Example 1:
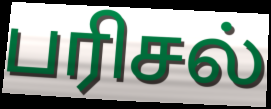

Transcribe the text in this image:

பரிசல்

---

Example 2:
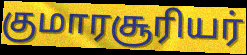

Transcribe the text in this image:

குமாரசூரியர்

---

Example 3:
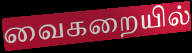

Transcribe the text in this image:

வைகறையில்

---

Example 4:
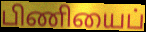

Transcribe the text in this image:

பிணியைப்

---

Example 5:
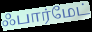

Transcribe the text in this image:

ஃபார்மேட்